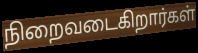
நிறைவடைகிறார்கள்